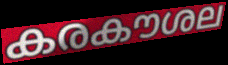
കരകൗശല